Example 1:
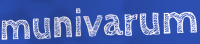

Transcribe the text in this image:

munivarum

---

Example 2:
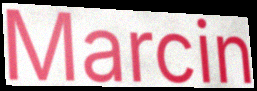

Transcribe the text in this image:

Marcin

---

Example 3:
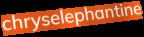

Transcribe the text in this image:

chryselephantine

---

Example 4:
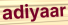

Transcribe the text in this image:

adiyaar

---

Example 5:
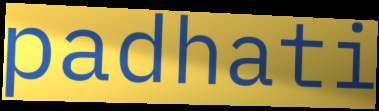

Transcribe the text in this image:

padhati